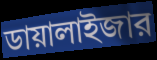
ডায়ালাইজার